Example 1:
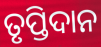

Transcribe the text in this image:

ତୃପ୍ତିଦାନ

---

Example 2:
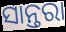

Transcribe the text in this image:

ସାନ୍ତରା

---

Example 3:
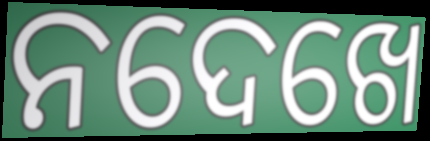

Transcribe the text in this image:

ନଦେଖେ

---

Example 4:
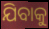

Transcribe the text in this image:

ଯିବାକୁ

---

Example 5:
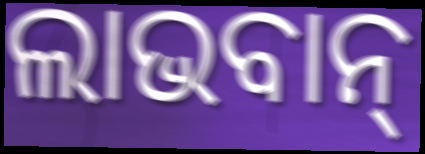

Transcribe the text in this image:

ଲାଭବାନ୍